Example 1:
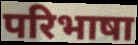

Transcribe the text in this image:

परिभाषा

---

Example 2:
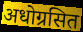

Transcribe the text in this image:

अधोग्रसित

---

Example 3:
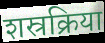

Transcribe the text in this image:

शस्रक्रिया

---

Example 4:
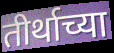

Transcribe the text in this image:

तीर्थाच्या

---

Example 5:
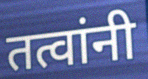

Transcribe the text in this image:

तत्वांनी